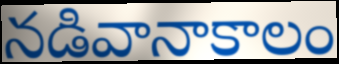
నడివానాకాలం